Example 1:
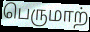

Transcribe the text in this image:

பெருமாற்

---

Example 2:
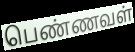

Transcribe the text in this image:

பெண்ணவள்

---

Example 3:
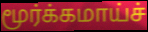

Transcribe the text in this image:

மூர்க்கமாய்ச்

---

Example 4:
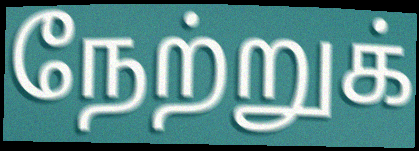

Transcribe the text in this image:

நேற்றுக்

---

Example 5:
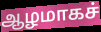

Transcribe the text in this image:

ஆழமாகச்